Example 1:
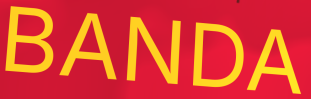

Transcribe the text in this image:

BANDA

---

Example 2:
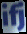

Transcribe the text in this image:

ifj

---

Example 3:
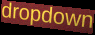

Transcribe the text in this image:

dropdown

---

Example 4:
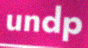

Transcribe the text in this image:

undp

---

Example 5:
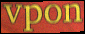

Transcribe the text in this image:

vpon